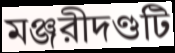
মঞ্জরীদণ্ডটি